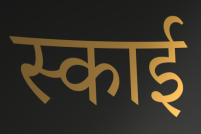
स्काई